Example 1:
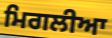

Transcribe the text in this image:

ਮਿਗਲੀਆ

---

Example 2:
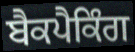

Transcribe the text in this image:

ਬੈਕਪੈਕਿੰਗ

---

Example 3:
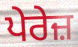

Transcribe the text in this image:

ਪੇਰੇਜ਼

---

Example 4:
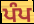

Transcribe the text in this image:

ਪੰਪ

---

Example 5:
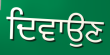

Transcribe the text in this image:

ਦਿਵਾਉਣ